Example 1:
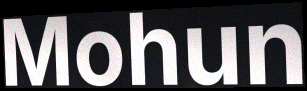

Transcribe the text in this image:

Mohun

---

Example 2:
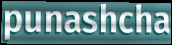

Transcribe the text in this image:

punashcha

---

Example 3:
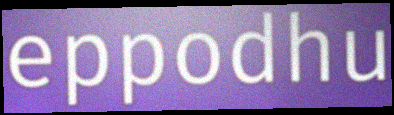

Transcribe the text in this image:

eppodhu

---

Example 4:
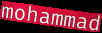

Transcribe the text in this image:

mohammad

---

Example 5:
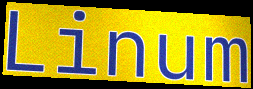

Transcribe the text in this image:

Linum